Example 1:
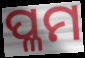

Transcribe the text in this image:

ପ୍ଳମ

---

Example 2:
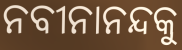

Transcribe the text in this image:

ନବୀନାନନ୍ଦକୁ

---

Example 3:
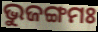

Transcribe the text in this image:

ଭୁଜଙ୍ଗମଃ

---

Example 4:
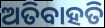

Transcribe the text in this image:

ଅତିବାହତି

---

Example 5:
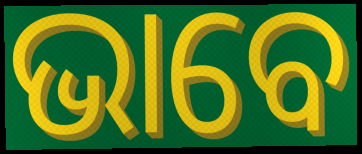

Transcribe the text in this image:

ଭାବେ